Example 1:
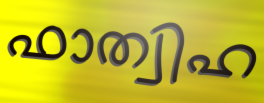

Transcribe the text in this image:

ഫാത്വിഹ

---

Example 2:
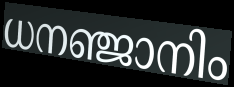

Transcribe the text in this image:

ധനഞ്ജാനിം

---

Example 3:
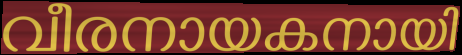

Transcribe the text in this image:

വീരനായകനായി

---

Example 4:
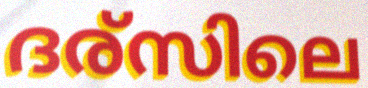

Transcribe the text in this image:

ദര്സിലെ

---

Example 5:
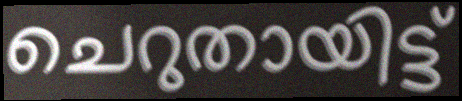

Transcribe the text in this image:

ചെറുതായിട്ട്